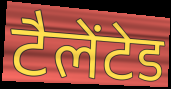
टैलेंटेड